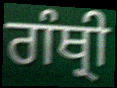
ਗੰਥ੍ਰੀ